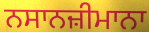
ਨਸਾਨਜ਼ੀਮਾਨਾ